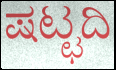
ಷಟ್ಟದಿ